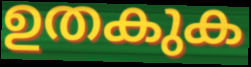
ഉതകുക